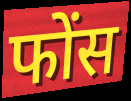
फोंस